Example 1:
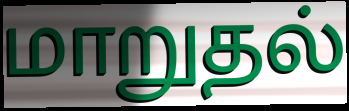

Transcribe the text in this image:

மாறுதல்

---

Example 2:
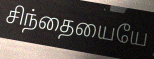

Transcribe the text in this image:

சிந்தையையே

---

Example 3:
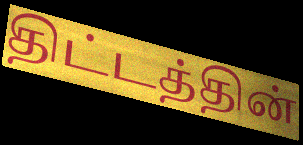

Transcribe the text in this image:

திட்டத்தின்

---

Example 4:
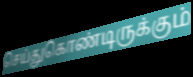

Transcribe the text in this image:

செய்துகொண்டிருக்கும்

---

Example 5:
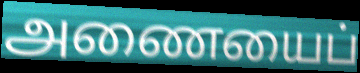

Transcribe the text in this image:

அணையைப்